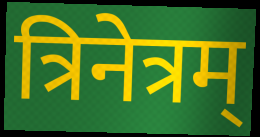
त्रिनेत्रम्